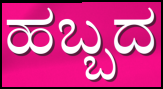
ಹಬ್ಬದ